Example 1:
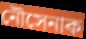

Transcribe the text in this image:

নৌসেনাক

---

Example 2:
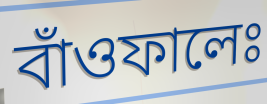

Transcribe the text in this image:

বাঁওফালেঃ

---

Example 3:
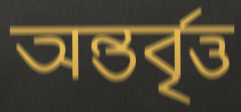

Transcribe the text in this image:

অন্তৰ্বৃত্ত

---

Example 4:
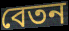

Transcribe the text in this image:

বেতন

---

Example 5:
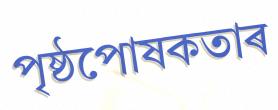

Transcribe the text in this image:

পৃষ্ঠপোষকতাৰ